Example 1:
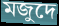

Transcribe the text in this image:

মজুদে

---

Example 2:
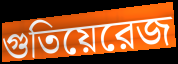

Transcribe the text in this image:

গুতিয়েরেজ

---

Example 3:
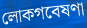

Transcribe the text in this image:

লোকগবেষণা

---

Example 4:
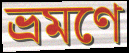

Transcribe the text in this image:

ভ্রমণে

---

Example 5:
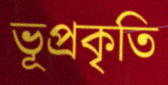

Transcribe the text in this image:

ভূপ্রকৃতি